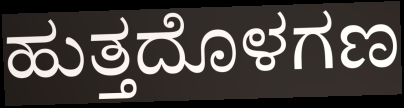
ಹುತ್ತದೊಳಗಣ